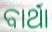
ବାର୍ଥା